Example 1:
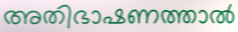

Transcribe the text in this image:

അതിഭാഷണത്താൽ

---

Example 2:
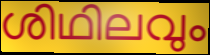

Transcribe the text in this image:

ശിഥിലവും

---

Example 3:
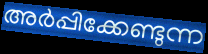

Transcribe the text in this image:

അർപ്പിക്കേണ്ടുന്ന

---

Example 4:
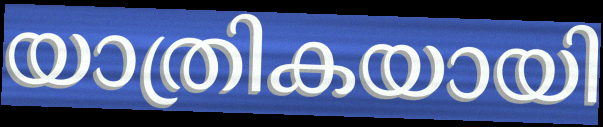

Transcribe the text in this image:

യാത്രികയായി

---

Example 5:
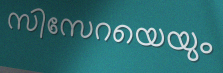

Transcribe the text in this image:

സിസേറയെയും